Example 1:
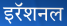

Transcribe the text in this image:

इरॅशनल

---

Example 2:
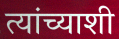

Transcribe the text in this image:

त्यांच्याशी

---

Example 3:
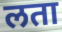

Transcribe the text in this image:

लता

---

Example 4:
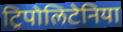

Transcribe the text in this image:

ट्रिपोलिटेनिया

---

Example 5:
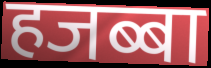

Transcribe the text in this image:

हजब्बा